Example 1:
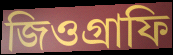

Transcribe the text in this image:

জিওগ্রাফি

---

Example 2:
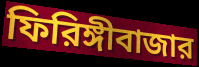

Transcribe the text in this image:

ফিরিঙ্গীবাজার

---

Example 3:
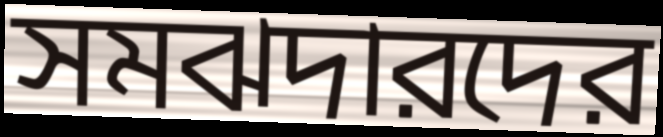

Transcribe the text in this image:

সমঝদারদের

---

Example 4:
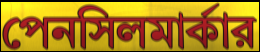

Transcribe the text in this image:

পেনসিলমার্কার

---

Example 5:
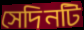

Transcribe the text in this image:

সেদিনটি